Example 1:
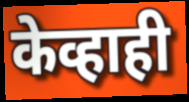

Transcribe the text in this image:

केव्हाही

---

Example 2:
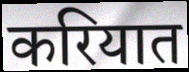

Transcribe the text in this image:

करियात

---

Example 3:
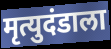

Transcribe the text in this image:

मृत्युदंडाला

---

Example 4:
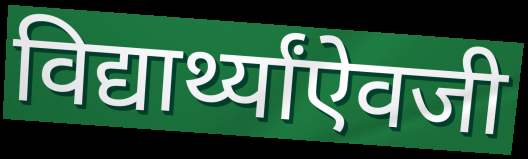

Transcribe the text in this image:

विद्यार्थ्यांऐवजी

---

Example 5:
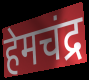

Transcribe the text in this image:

हेमचंद्र